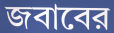
জবাবের